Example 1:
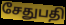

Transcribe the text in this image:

சேதுபதி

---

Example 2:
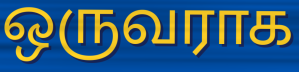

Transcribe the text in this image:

ஒருவராக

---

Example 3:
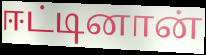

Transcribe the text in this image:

ஈட்டினான்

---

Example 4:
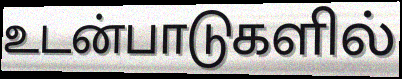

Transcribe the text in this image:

உடன்பாடுகளில்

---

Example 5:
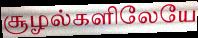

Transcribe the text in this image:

சூழல்களிலேயே